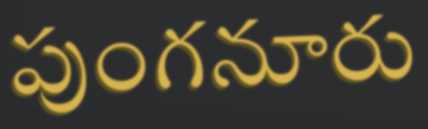
పుంగనూరు